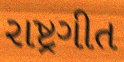
રાષ્ટ્રગીત